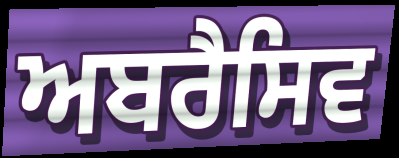
ਅਬਰੈਸਿਵ